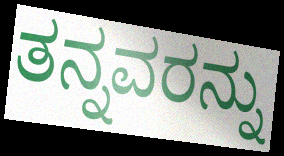
ತನ್ನವರನ್ನು